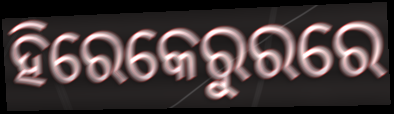
ହିରେକେରୁରରେ